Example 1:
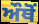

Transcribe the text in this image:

ਔਥੋਂ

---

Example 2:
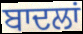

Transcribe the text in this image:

ਬਾਦਲਾਂ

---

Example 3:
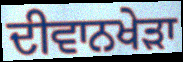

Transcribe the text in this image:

ਦੀਵਾਨਖੇੜਾ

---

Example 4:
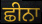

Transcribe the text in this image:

ਛੀਨਾ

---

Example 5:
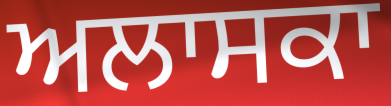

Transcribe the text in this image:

ਅਲਾਸਕਾ